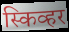
स्किव्हर